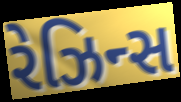
રેઝિન્સ